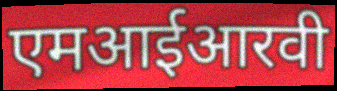
एमआईआरवी